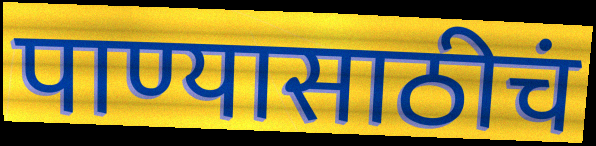
पाण्यासाठीचं